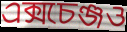
এক্সচেঞ্জও